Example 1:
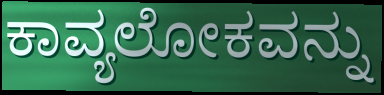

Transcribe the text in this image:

ಕಾವ್ಯಲೋಕವನ್ನು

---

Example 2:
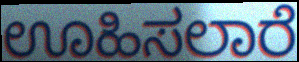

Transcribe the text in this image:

ಊಹಿಸಲಾರೆ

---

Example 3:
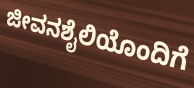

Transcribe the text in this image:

ಜೀವನಶೈಲಿಯೊಂದಿಗೆ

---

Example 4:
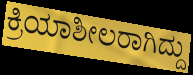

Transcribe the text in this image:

ಕ್ರಿಯಾಶೀಲರಾಗಿದ್ದು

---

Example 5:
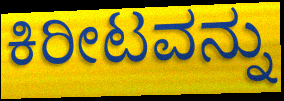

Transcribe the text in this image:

ಕಿರೀಟವನ್ನು